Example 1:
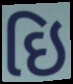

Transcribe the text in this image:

ઇિ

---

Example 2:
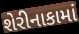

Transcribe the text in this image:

શેરીનાકામાં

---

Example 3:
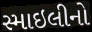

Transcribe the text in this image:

સ્માઇલીનો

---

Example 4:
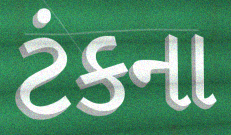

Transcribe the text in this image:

ટંકના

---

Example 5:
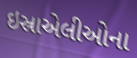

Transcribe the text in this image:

ઇસ્રાએલીઓના